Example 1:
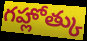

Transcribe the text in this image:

గహ్లోత్కు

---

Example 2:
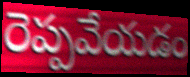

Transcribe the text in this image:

రెప్పవేయడం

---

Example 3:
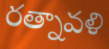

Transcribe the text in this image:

రత్నావళి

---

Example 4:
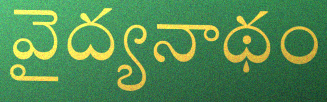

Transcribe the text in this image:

వైద్యనాథం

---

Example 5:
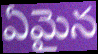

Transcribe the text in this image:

ఏమైన